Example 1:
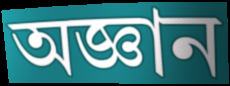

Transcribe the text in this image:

অজ্ঞান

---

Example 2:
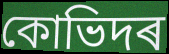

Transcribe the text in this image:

কোভিদৰ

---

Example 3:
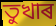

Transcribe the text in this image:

তুখাৰ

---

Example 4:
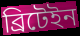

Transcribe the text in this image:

ব্ৰিটেইন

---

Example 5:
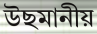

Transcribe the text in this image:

উছমানীয়